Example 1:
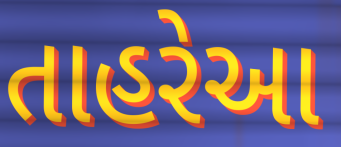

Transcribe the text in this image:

તાહરેઆ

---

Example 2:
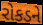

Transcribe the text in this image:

રોકડને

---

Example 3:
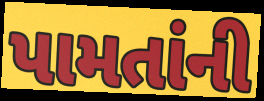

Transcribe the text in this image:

પામતાંની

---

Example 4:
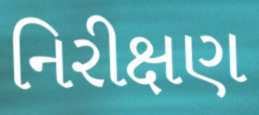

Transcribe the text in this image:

નિરીક્ષણ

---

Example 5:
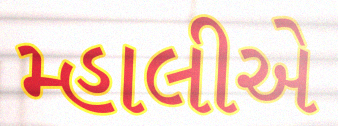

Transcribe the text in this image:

મ્હાલીએ